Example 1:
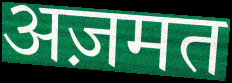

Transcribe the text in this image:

अज़मत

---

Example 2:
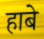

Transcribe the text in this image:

हाबे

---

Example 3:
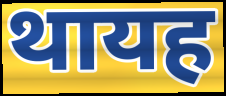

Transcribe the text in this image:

थायह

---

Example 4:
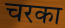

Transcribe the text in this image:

चरका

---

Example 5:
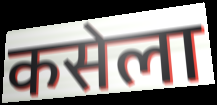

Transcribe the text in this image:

कसेला